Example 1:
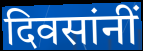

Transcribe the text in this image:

दिवसांनीं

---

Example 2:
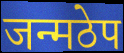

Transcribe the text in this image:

जन्मठेप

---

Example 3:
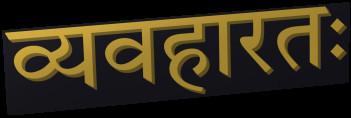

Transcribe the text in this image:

व्यवहारतः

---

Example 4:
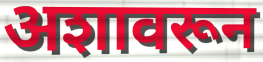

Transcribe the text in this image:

अशावरून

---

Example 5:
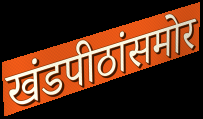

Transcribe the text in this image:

खंडपीठांसमोर